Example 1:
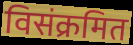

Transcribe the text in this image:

विसंक्रमित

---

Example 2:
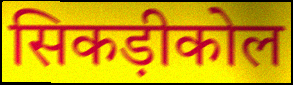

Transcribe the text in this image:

सिकड़ीकोल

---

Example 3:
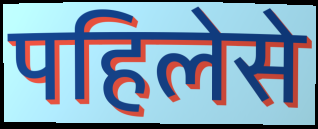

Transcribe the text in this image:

पहिलेसे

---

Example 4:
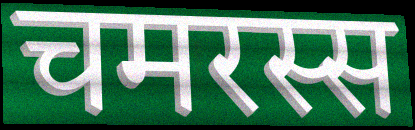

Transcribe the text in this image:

चमरस्स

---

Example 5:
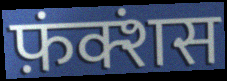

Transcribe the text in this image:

फ़ंक्शंस